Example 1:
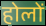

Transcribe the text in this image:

होलों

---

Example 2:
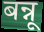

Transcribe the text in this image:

बन्नू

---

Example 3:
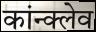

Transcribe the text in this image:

कांन्क्लेव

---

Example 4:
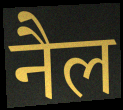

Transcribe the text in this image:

नैल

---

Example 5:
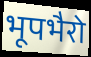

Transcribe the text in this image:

भूपभैरो